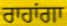
ਰਾਹਾਂਗਾ